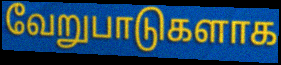
வேறுபாடுகளாக